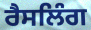
ਰੈਸਲਿੰਗ